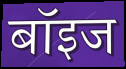
बॉइज